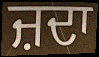
ਜ਼ਦਾ